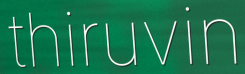
thiruvin